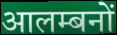
आलम्बनों